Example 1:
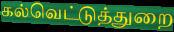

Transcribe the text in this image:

கல்வெட்டுத்துறை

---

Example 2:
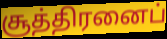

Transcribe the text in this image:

சூத்திரனைப்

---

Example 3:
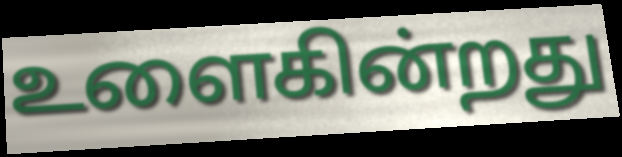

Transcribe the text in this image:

உளைகின்றது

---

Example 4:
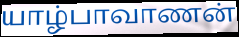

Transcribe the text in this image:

யாழ்பாவாணன்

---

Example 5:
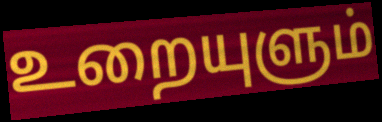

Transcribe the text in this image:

உறையுளும்